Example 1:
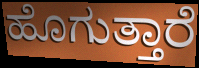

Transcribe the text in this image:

ಹೊಗುತ್ತಾರೆ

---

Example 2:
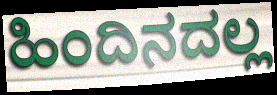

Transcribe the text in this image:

ಹಿಂದಿನದಲ್ಲ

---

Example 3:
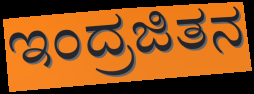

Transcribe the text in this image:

ಇಂದ್ರಜಿತನ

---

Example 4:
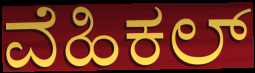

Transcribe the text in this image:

ವೆಹಿಕಲ್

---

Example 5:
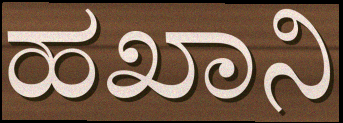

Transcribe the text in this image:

ಹಖಾನಿ